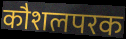
कौशलपरक